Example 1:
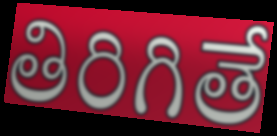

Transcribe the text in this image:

తిరిగితే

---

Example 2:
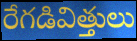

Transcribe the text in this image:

రేగడివిత్తులు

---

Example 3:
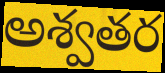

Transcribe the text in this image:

అశ్వతర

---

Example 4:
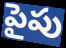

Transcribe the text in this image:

పైపు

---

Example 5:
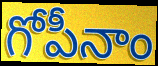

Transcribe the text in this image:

గోపీనాం